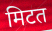
मिटत